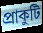
প্রাকুটি